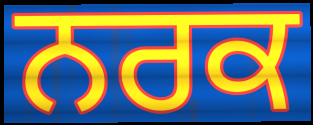
ਨਰਕ